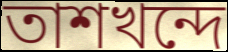
তাশখন্দে